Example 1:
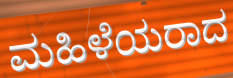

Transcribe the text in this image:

ಮಹಿಳೆಯರಾದ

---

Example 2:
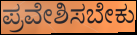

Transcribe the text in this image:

ಪ್ರವೇಶಿಸಬೇಕು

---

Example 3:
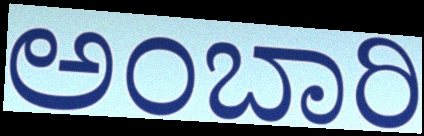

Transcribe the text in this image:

ಅಂಬಾರಿ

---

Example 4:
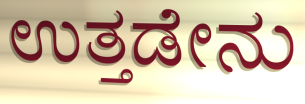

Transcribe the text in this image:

ಉತ್ತಡೇನು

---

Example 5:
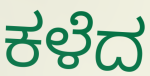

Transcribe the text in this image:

ಕಳೆದ